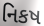
નિકષ